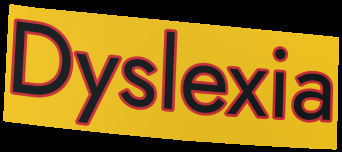
Dyslexia